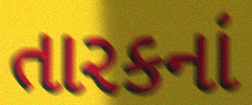
તારકનાં